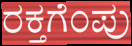
ರಕ್ತಗೆಂಪು